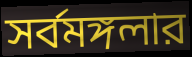
সর্বমঙ্গলার